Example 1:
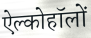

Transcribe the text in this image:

ऐल्कोहॉलों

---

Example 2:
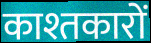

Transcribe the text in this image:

काश्तकारों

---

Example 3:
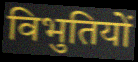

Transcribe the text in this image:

विभुतियों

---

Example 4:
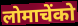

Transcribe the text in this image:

लोमाचेंको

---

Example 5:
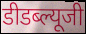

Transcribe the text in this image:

डीडब्ल्यूजी